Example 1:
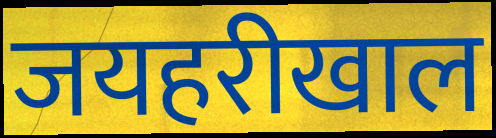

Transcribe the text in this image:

जयहरीखाल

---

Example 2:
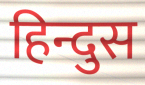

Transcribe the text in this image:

हिन्दुस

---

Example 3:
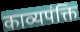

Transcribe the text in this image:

काव्यपंक्ति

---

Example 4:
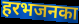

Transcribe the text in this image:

हरभजनका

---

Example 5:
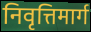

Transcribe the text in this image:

निवृत्तिमार्ग